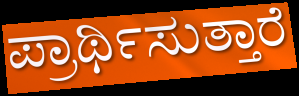
ಪ್ರಾರ್ಥಿಸುತ್ತಾರೆ